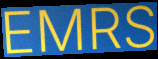
EMRS